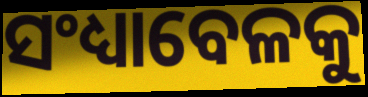
ସଂଧ୍ୟାବେଳକୁ